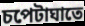
চপেটাঘাতে